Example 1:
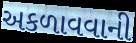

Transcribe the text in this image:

અકળાવવાની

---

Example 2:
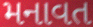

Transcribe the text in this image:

મનાવત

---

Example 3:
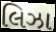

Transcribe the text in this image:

લિઝા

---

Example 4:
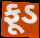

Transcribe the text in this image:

ફૂડ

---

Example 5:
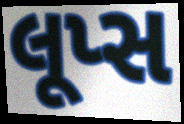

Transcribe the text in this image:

લૂપ્સ